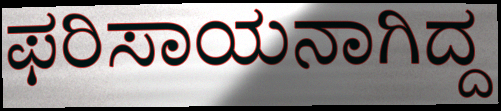
ಫರಿಸಾಯನಾಗಿದ್ದ